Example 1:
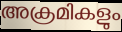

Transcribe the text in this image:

അക്രമികളും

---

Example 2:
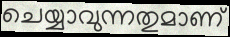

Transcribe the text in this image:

ചെയ്യാവുന്നതുമാണ്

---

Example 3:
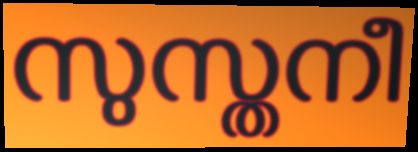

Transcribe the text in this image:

സുസ്തനീ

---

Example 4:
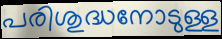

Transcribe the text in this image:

പരിശുദ്ധനോടുള്ള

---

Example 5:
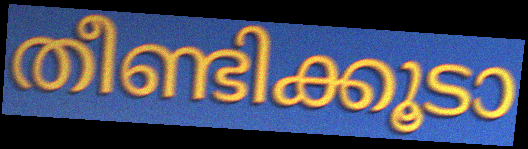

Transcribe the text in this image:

തീണ്ടിക്കൂടാ